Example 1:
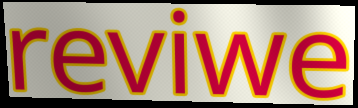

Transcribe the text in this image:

reviwe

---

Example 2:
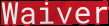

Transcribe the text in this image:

Waiver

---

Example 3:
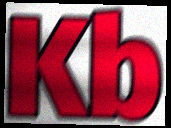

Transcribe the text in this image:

Kb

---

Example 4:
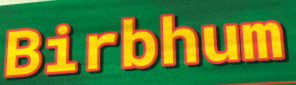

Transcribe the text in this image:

Birbhum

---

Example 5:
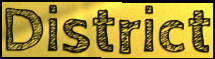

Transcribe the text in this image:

District